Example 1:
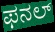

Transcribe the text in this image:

ಫನಲ್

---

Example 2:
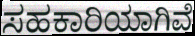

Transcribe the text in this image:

ಸಹಕಾರಿಯಾಗಿವೆ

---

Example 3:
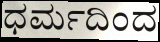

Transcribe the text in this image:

ಧರ್ಮದಿಂದ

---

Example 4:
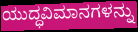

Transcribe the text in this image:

ಯುದ್ಧವಿಮಾನಗಳನ್ನು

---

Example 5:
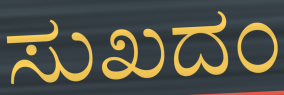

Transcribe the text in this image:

ಸುಖದಂ